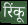
रिंकू